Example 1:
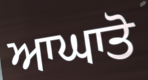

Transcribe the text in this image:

ਆਘਾਤੋ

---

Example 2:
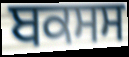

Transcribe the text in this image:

ਬਕਸਸ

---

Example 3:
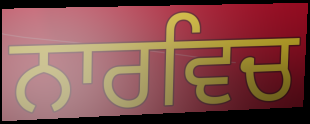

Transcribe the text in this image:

ਨਾਰਵਿਚ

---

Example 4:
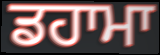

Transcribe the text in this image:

ਡਹਾਮਾ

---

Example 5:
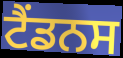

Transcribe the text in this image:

ਟੈਂਡਨਸ